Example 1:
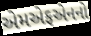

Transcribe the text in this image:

એમએફએનનો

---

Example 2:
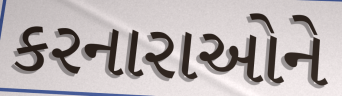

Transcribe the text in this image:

કરનારાઓને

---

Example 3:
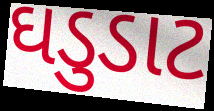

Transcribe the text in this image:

ઘડુડાટ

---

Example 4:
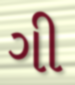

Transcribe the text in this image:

ગી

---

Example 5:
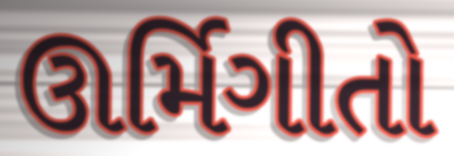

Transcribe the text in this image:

ઊર્મિગીતો